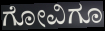
ಗೋವಿಗೂ